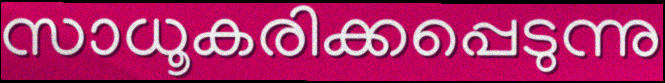
സാധൂകരിക്കപ്പെടുന്നു